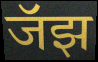
जॅझ